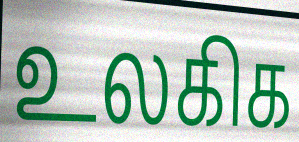
உலகிக